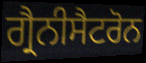
ਗ੍ਰੈਨੀਸੈਟਰੋਨ